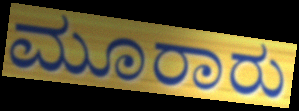
ಮೂರಾರು